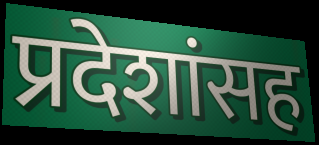
प्रदेशांसह